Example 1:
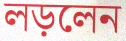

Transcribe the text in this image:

লড়লেন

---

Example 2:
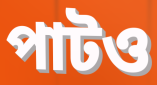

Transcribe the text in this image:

পাটও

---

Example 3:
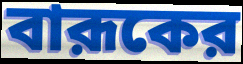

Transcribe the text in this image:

বারূকের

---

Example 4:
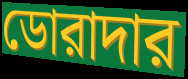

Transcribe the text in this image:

ডোরাদার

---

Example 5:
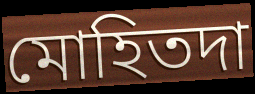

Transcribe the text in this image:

মোহিতদা